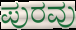
ಪುರವು